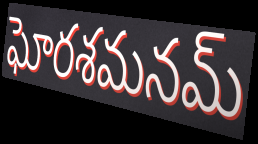
ఘోరశమనమ్